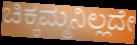
ಚಿಕ್ಕಮ್ಮನಿಲ್ಲದೇ